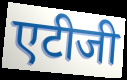
एटीजी